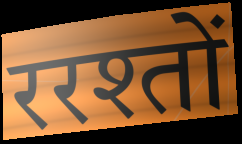
ररश्तों